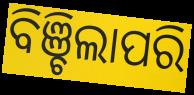
ବିଞ୍ଚିଲାପରି